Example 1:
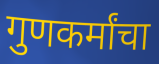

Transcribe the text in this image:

गुणकर्मांचा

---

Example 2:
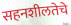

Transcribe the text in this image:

सहनशीलतेचे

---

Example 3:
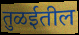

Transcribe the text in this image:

तुळईतील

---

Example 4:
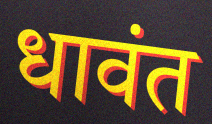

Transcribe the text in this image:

धावंत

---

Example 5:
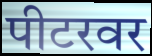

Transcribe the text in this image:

पीटरवर